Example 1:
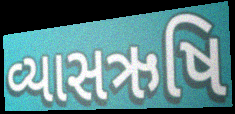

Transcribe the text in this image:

વ્યાસઋષિ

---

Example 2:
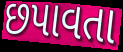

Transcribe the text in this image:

છપાવતા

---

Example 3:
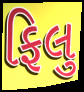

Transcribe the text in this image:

ફિલુ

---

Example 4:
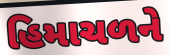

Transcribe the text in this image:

હિમાચળને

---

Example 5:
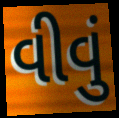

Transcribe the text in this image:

વીવું